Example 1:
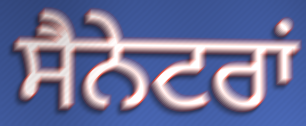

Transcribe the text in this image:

ਸੈਨੇਟਰਾਂ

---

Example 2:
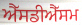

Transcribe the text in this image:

ਐੱਸਡੀਐੱਸਮ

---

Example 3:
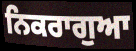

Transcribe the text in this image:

ਨਿਕਰਾਗੁਆ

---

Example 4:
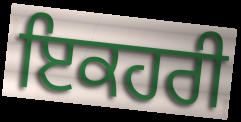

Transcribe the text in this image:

ਇਕਹਰੀ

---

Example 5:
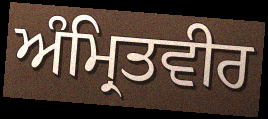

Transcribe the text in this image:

ਅੰਮ੍ਰਿਤਵੀਰ